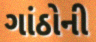
ગાંઠોની